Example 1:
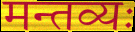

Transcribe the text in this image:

मन्तव्यः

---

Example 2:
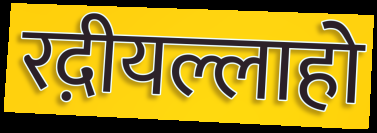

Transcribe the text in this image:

रद़ीयल्लाहो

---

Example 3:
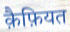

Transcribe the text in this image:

क़ैफ़ियत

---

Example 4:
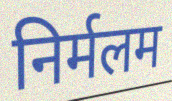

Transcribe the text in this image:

निर्मलम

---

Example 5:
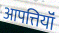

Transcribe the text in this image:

आपत्तियॉं